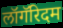
लॉगॅरिदम